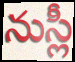
నుస్లీ